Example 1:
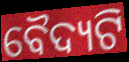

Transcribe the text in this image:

ବୈଦ୍ୟଟି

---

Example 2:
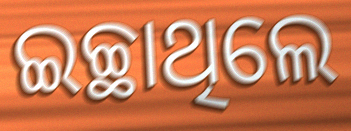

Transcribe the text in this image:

ଇଚ୍ଛାଥିଲେ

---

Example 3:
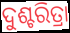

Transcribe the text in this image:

ଦୁଶ୍ଚରିତ୍ରା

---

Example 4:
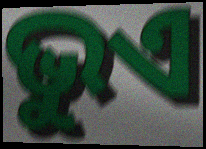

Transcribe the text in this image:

ଭୁଏ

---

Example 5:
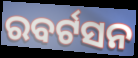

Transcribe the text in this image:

ରବର୍ଟସନ